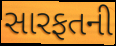
સારફતની